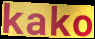
kako